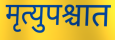
मृत्युपश्चात